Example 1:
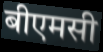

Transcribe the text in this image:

बीएमसी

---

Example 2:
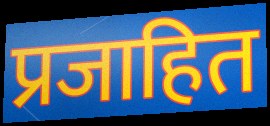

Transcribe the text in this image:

प्रजाहित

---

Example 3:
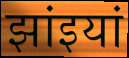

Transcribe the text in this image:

झांइयां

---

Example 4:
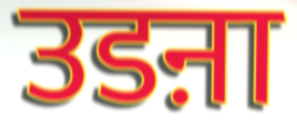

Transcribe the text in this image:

उडऩा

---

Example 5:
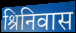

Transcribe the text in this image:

श्रिनिवास